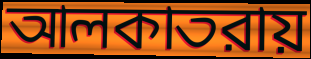
আলকাতরায়